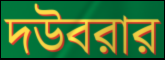
দউবরার